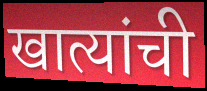
खात्यांची